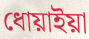
ধোয়াইয়া